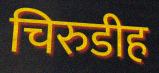
चिरुडीह